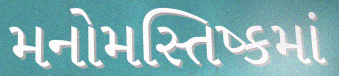
મનોમસ્તિષ્કમાં